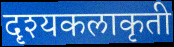
दृश्यकलाकृती